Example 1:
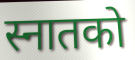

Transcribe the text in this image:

स्नातको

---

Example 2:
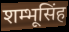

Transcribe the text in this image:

शम्भूसिंह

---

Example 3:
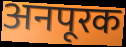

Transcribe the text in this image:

अनपूरक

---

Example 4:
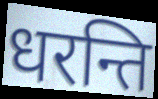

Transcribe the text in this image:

धरन्ति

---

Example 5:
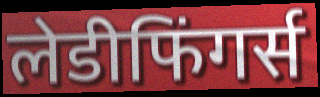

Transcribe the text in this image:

लेडीफिंगर्स